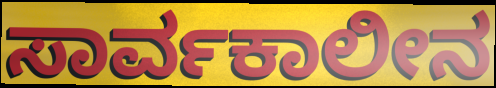
ಸಾರ್ವಕಾಲೀನ